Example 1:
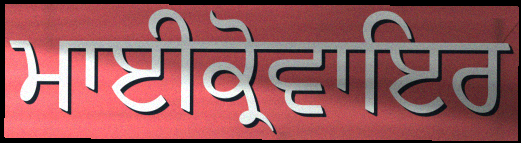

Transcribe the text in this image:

ਮਾਈਕ੍ਰੋਵਾਇਰ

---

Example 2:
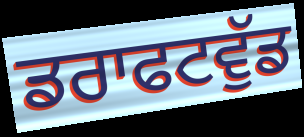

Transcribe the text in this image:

ਡਰਾਫਟਵੁੱਡ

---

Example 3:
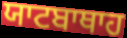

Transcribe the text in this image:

ਯਾਟਬਾਥਾਹ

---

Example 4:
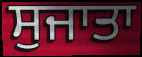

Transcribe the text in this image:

ਸੁਜਾਤਾ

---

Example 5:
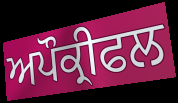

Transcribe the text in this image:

ਅਪੌਕ੍ਰੀਫਲ